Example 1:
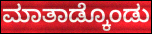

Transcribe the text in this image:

ಮಾತಾಡ್ಕೊಂಡು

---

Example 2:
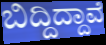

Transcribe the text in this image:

ಬಿದ್ದಿದ್ದಾವೆ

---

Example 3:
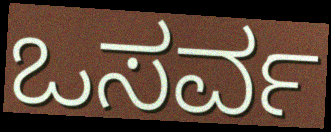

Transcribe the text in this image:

ಒಸರ್ವ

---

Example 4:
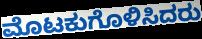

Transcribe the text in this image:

ಮೊಟಕುಗೊಳಿಸಿದರು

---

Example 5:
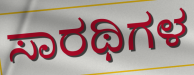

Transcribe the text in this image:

ಸಾರಥಿಗಳ